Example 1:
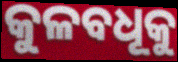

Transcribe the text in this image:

କୁଳବଧୂକୁ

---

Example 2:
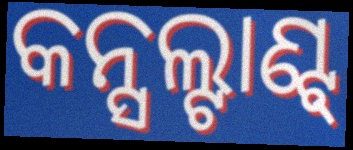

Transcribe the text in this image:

କନ୍ସଲ୍ଟାଣ୍ଟ୍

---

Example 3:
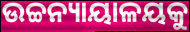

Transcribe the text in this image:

ଉଚ୍ଚନ୍ୟାୟାଳୟକୁ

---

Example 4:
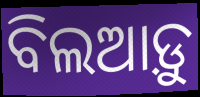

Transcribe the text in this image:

ବିଲଆଡ଼ୁ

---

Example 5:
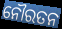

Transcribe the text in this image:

ନୌରତନ